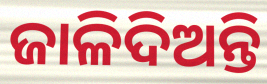
ଜାଳିଦିଅନ୍ତି